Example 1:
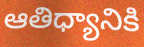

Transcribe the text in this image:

ఆతిధ్యానికి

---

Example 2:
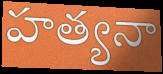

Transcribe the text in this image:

హత్యనా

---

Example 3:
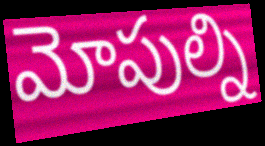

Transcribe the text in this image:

మోపుల్ని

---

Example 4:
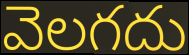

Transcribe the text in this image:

వెలగదు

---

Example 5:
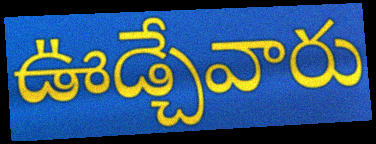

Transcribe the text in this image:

ఊడ్చేవారు